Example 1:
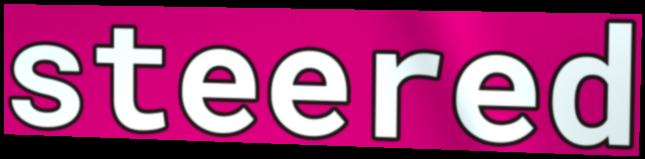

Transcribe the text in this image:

steered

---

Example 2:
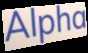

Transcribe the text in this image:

Alpha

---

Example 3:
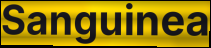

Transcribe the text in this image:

Sanguinea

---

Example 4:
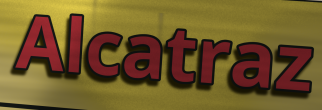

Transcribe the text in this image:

Alcatraz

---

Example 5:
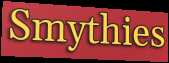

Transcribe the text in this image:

Smythies